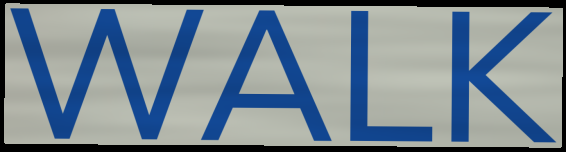
WALK